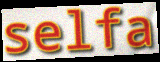
selfa